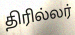
திரில்லர்